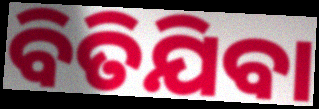
ବିତିଯିବା